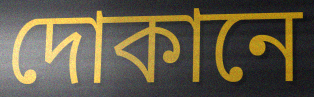
দোকানে